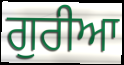
ਗੁਰੀਆ